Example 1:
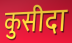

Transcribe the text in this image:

कुसीदा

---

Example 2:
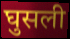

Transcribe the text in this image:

घुसली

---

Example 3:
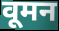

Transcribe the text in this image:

वूमन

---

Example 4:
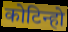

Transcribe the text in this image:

कोटिन्हो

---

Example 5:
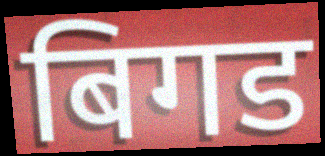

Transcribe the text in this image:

बिगड